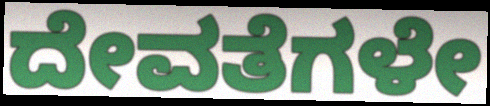
ದೇವತೆಗಳೇ